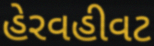
હેરવહીવટ